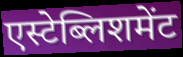
एस्टेब्लिशमेंट